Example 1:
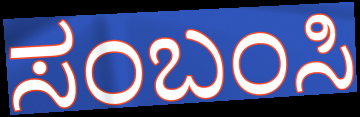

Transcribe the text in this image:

ಸಂಬಂಸಿ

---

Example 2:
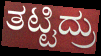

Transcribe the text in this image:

ತಟ್ಟಿದ್ರು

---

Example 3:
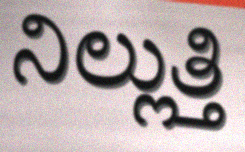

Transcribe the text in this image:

ನಿಲ್ಲುತ್ತಿ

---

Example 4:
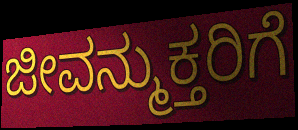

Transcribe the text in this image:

ಜೀವನ್ಮುಕ್ತರಿಗೆ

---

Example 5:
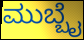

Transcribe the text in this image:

ಮುಬ್ಬೈ